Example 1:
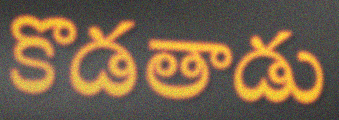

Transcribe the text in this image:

కొడతాడు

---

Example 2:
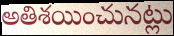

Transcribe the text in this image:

అతిశయించునట్లు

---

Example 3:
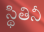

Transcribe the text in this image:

స్థితినీ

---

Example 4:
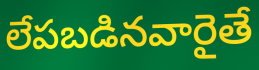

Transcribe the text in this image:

లేపబడినవారైతే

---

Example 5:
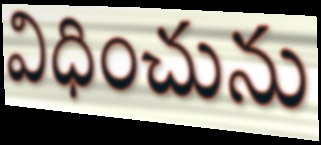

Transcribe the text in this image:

విధించును